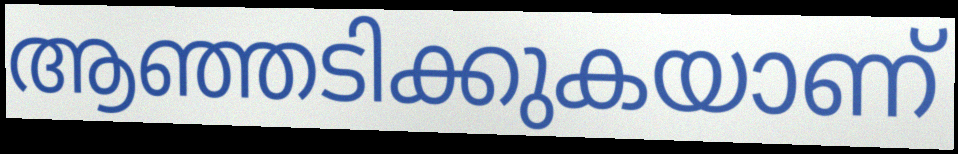
ആഞ്ഞടിക്കുകയാണ്